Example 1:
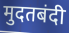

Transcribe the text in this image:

मुदतबंदी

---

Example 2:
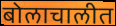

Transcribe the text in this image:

बोलाचालीत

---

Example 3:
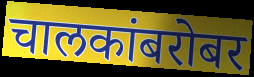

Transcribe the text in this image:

चालकांबरोबर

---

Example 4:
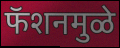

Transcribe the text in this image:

फॅशनमुळे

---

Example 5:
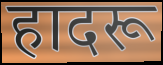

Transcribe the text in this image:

हादरू